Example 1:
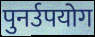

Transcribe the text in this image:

पुनर्उपयोग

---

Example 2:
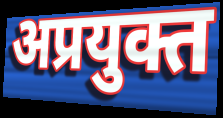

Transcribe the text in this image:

अप्रयुक्त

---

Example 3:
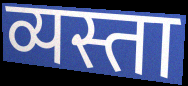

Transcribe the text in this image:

व्यस्ता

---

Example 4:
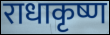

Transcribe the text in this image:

राधाकृष्ण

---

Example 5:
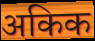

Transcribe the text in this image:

अकिक